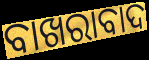
ବାଖରାବାଦ